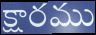
క్షారము